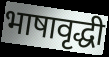
भाषावृद्धी